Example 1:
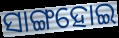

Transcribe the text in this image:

ସାଙ୍ଗହୋଇ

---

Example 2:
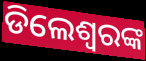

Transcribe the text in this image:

ଡିଲେଶ୍ଵରଙ୍କ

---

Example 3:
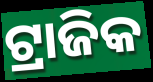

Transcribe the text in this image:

ଟ୍ରାଜିକ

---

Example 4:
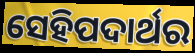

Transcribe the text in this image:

ସେହିପଦାର୍ଥର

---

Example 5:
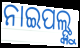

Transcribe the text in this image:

ନାଇପଲ୍ଙ୍କୁ